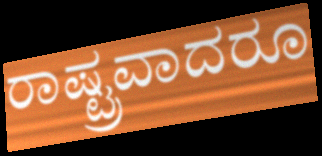
ರಾಷ್ಟ್ರವಾದರೂ